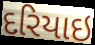
દરિયાઇ